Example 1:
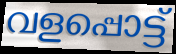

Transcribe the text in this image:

വളപ്പൊട്ട്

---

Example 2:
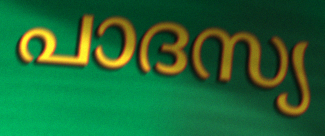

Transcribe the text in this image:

പാദസ്യ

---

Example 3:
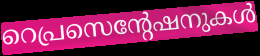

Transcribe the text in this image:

റെപ്രസെന്റേഷനുകൾ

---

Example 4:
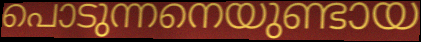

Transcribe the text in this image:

പൊടുന്നനെയുണ്ടായ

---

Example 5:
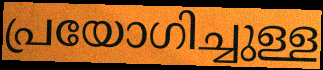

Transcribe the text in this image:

പ്രയോഗിച്ചുള്ള